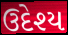
ઉદેશ્ય